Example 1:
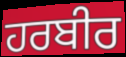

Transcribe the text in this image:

ਹਰਬੀਰ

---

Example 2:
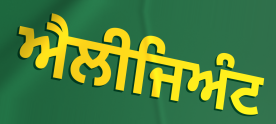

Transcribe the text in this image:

ਐਲੀਜਿਅੰਟ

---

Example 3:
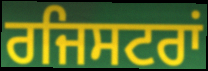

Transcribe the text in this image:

ਰਜਿਸਟਰਾਂ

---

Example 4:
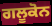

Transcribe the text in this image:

ਗਲੂਕੋਨ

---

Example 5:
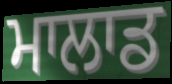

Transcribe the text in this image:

ਮਾਲਾਡ